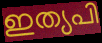
ഇത്യപി